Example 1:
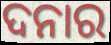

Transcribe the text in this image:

ଦନାର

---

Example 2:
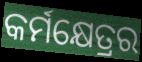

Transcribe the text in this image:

କର୍ମକ୍ଷେତ୍ରର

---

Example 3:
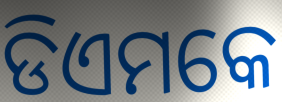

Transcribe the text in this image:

ଡିଏମକେ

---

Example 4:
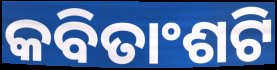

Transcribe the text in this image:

କବିତାଂଶଟି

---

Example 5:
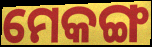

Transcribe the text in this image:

ମେକଙ୍ଗ